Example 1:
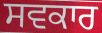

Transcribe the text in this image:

ਸਵਕਾਰ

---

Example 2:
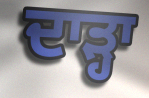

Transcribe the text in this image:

ਦਾੜ੍ਹਾ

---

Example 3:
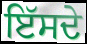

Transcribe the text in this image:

ਇੱਸਦੇ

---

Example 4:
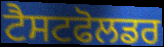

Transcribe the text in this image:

ਟੈਸਟਫੋਲਡਰ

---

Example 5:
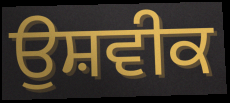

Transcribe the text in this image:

ਉਸ਼ਵੀਕ